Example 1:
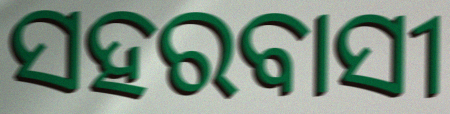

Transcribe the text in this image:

ସହରବାସୀ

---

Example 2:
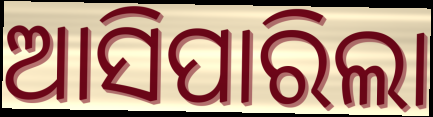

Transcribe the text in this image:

ଆସିପାରିଲା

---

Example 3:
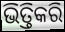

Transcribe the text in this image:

ଭିତ୍ତିକରି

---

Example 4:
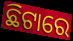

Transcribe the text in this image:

ଛିଟାରେ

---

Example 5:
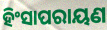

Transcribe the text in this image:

ହିଂସାପରାୟଣ